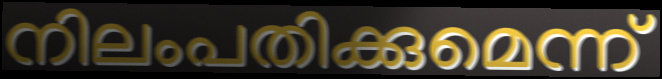
നിലംപതിക്കുമെന്ന്